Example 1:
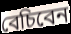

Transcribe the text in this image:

বেচিবেন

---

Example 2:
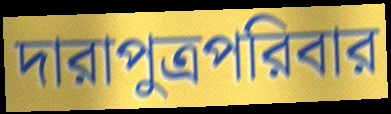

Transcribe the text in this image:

দারাপুত্রপরিবার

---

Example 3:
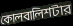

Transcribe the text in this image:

কোলবালিশটার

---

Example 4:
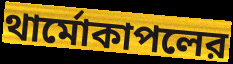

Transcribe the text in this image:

থার্মোকাপলের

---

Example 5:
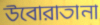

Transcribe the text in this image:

উবোরাতানা